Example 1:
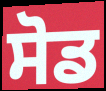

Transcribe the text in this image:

ਸੋਡ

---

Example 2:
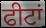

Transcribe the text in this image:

ਫੀਟਾਂ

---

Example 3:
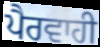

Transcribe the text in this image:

ਪੈਰਵਾਹੀ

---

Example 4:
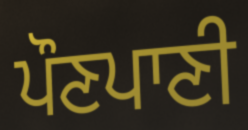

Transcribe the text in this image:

ਪੌਣਪਾਣੀ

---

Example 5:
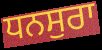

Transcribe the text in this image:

ਧਨਸੁਰਾ